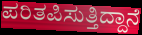
ಪರಿತಪಿಸುತ್ತಿದ್ದಾನೆ